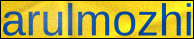
arulmozhi